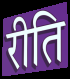
रीति